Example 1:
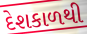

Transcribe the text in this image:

દેશકાળથી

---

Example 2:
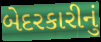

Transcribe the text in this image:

બેદરકારીનું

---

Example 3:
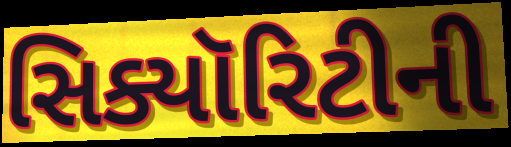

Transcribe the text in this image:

સિક્યૉરિટીની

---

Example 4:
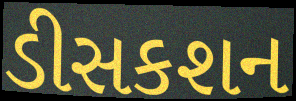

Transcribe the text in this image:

ડીસકશન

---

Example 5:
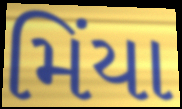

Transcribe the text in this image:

મિંયા